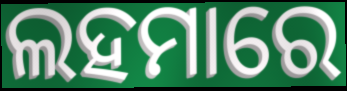
ଲହମାରେ